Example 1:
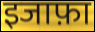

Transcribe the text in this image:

इजाफ़ा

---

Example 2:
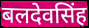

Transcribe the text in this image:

बलदेवसिंह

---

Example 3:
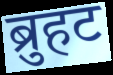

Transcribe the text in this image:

ब्रुहट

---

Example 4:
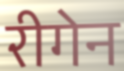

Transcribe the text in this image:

रीगेन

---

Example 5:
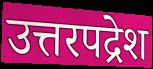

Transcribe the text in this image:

उत्तरपद्रेश